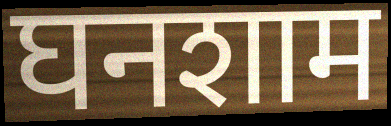
घनशाम